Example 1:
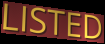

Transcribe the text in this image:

LISTED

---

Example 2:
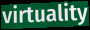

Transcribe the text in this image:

virtuality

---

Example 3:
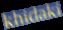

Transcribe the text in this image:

khidaki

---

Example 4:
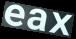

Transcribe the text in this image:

eax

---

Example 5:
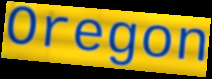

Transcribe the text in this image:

Oregon